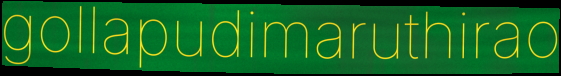
gollapudimaruthirao